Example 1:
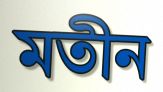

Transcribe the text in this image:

মতীন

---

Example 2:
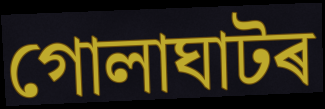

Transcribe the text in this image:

গোলাঘাটৰ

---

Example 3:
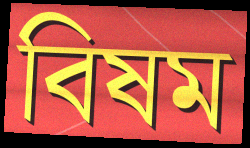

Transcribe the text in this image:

বিষম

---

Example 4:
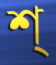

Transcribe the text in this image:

শ্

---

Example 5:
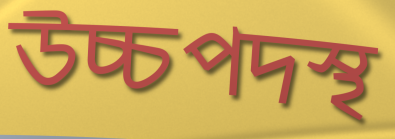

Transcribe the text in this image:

উচ্চপদস্থ